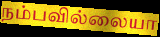
நம்பவில்லையா